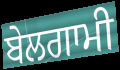
ਬੇਲਗਾਮੀ